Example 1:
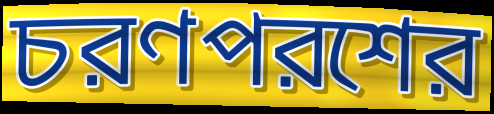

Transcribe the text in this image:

চরণপরশের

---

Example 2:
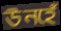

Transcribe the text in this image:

উনহেঁ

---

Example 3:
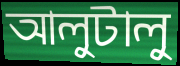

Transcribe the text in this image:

আলুটালু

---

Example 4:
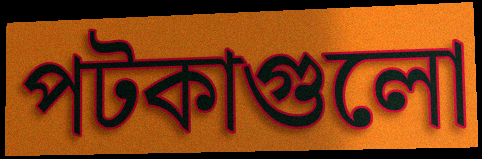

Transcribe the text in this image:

পটকাগুলো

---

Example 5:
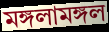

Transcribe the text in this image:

মঙ্গলামঙ্গল